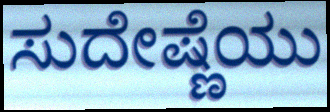
ಸುದೇಷ್ಣೆಯು